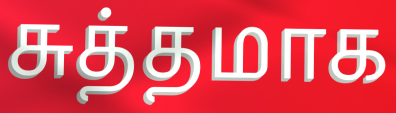
சுத்தமாக